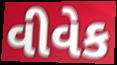
વીવેક